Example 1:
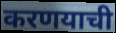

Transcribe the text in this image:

करणयाची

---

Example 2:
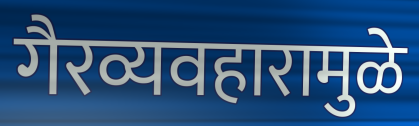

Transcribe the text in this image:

गैरव्यवहारामुळे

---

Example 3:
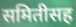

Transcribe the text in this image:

समितीसह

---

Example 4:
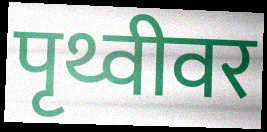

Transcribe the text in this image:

पृथ्वीवर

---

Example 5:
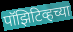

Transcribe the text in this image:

पॉझिटिव्हच्या